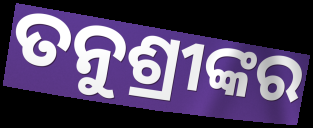
ତନୁଶ୍ରୀଙ୍କର